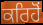
ਕਰਿਹੋਂ